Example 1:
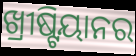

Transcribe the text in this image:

ଖ୍ରୀଷ୍ଟିୟାନର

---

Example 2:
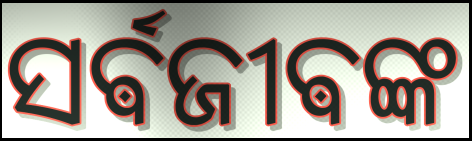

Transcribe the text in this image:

ସର୍ଵଜୀଵଙ୍କ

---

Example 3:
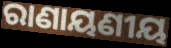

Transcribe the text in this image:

ରାଣାୟଣୀୟ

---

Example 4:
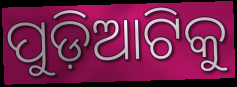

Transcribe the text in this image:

ପୁଡ଼ିଆଟିକୁ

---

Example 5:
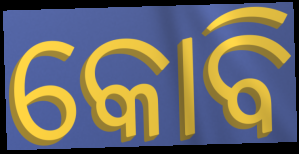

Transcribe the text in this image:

କୋବି